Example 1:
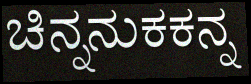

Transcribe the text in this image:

ಚಿನ್ನನುಕಕನ್ನ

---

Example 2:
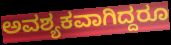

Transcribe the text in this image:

ಅವಶ್ಯಕವಾಗಿದ್ದರೂ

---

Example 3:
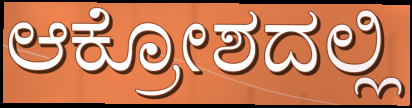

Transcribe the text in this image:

ಆಕ್ರೋಶದಲ್ಲಿ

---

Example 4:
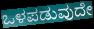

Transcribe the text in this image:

ಒಳಪಡುವುದೇ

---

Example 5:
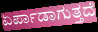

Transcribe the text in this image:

ಏರ್ಪಾಡಾಗುತ್ತದೆ